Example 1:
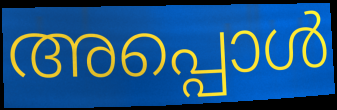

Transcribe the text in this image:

അപ്പൊൾ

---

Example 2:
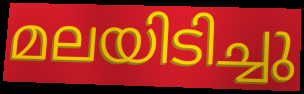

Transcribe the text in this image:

മലയിടിച്ചു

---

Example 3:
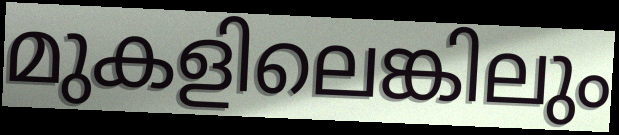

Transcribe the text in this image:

മുകളിലെങ്കിലും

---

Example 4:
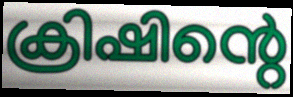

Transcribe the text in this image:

ക്രിഷിന്റെ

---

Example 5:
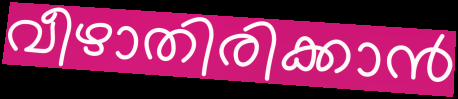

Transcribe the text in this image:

വീഴാതിരിക്കാൻ